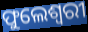
ଫୁଲେଶ୍ବରୀ